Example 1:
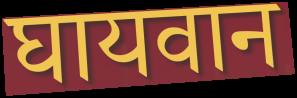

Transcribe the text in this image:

घायवान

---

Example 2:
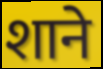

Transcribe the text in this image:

शाने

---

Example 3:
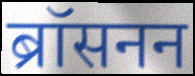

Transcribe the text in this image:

ब्रॉसनन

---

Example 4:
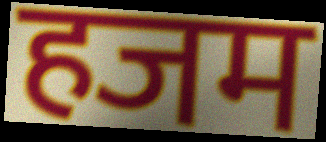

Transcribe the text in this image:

हजम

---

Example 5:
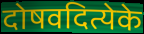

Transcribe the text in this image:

दोषवदित्येके